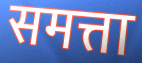
समत्ता